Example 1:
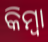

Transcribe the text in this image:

କିମ୍ଵା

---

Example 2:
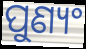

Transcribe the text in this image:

ପୁଣ୍ୟଂ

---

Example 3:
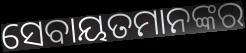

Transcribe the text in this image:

ସେବାୟତମାନଙ୍କର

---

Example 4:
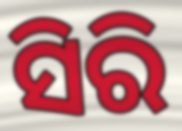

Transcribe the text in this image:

ସିରି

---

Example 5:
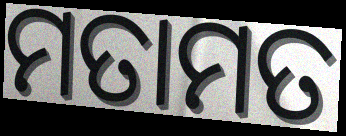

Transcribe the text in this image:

ମତାମତ